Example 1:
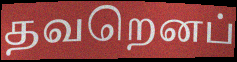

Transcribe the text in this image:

தவறெனப்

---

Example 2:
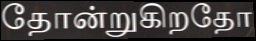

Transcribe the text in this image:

தோன்றுகிறதோ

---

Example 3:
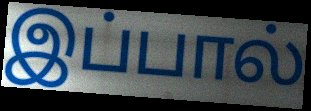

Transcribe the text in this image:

இப்பால்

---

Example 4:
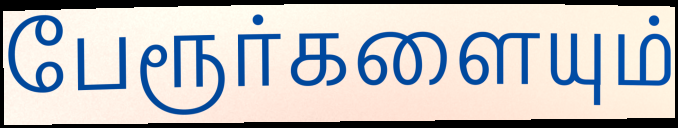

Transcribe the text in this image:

பேரூர்களையும்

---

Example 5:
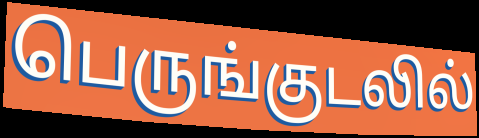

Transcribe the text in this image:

பெருங்குடலில்